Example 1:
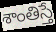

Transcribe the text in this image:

శాంతిస్తే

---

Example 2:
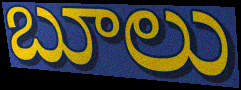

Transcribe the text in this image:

బూలు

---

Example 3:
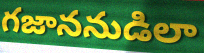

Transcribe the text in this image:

గజాననుడిలా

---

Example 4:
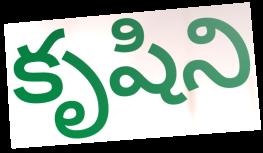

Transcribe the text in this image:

కృషిని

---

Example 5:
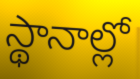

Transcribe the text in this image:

స్థానాల్లో